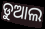
ଡୁଆଲ